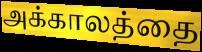
அக்காலத்தை